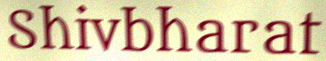
Shivbharat